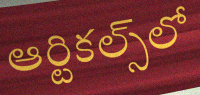
ఆర్టికల్స్‌లో